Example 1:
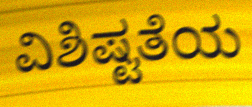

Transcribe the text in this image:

ವಿಶಿಷ್ಟತೆಯ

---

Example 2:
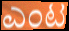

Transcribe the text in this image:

ಎಂಟ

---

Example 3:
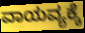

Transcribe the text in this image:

ವಾಯವ್ಯಕ್ಕೆ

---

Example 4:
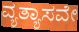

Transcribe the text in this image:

ವ್ಯತ್ಯಾಸವೇ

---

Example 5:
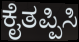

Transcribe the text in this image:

ಕೈತಪ್ಪಿಸಿ